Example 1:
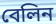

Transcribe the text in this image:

বেলিন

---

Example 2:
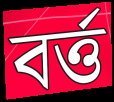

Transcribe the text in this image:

বর্ত্ত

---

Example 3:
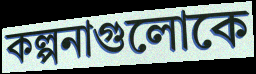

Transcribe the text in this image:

কল্পনাগুলোকে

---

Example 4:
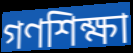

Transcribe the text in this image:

গণশিক্ষা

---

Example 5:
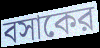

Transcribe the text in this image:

বসাকের